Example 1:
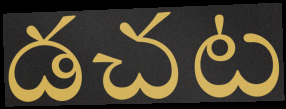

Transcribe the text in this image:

డచట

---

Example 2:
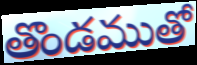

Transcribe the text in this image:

తొండముతో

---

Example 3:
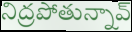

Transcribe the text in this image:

నిద్రపోతున్నావ్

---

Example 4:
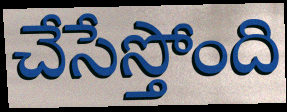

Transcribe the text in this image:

చేసేస్తోంది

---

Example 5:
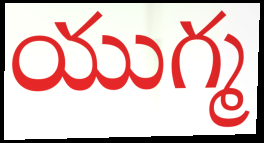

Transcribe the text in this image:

యుగ్మ